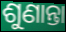
ଶୁଣାନ୍ତା